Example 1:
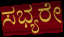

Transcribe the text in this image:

ಸಭ್ಯರೇ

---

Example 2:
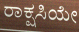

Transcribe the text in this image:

ರಾಕ್ಷಸಿಯೇ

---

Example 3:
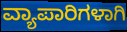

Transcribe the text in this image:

ವ್ಯಾಪಾರಿಗಳಾಗಿ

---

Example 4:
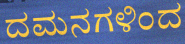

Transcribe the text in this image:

ದಮನಗಳಿಂದ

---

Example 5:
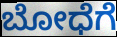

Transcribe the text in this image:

ಬೋಧೆಗೆ